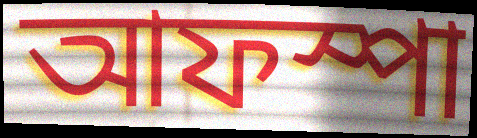
আফস্পা